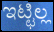
ಇಟ್ಟಿಲ್ಲ